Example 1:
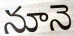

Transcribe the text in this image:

నూనె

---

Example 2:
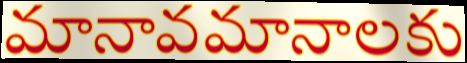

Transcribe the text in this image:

మానావమానాలకు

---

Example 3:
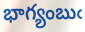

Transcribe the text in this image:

భాగ్యంబుఁ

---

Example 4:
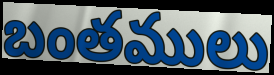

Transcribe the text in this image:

బంతములు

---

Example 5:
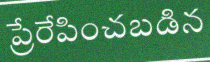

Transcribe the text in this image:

ప్రేరేపించబడిన